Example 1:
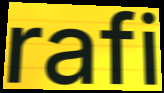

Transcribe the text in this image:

rafi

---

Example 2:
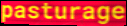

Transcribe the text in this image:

pasturage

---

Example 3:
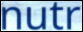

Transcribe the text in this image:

nutr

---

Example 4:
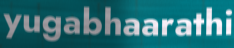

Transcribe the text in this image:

yugabhaarathi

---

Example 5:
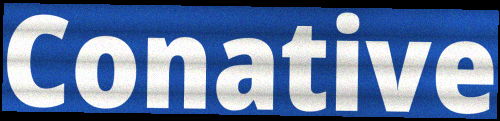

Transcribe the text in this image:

Conative